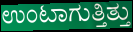
ಉಂಟಾಗುತ್ತಿತ್ತು